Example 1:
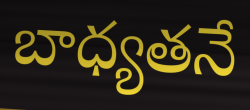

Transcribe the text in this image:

బాధ్యతనే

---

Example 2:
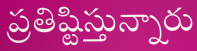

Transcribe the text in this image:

ప్రతిష్టిస్తున్నారు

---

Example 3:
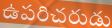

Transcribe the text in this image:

ఉపరిచరుడు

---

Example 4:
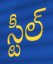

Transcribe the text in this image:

స్టీల్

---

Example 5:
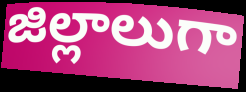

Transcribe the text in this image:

జిల్లాలుగా